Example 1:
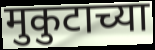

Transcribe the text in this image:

मुकुटाच्या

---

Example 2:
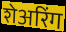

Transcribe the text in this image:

शेअरिंग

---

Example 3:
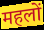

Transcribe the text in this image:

महलों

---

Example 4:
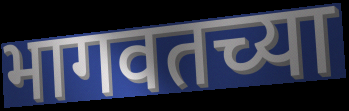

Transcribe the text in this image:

भागवतच्या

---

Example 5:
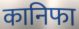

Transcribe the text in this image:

कानिफा